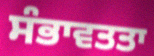
ਸੰਭਾਵਤਤਾ